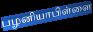
பழனியாபிள்ளை